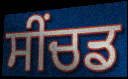
ਸੀਂਚਡ